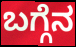
ಬಗ್ಗೆನ